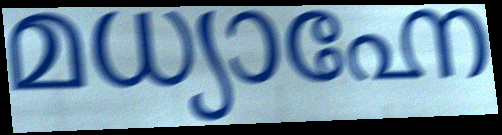
മധ്യാഹ്നേ